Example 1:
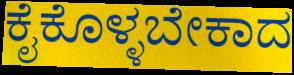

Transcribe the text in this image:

ಕೈಕೊಳ್ಳಬೇಕಾದ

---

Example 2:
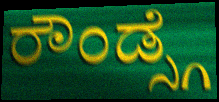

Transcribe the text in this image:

ರೌಂಡ್ಸ್ಗೆ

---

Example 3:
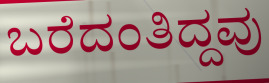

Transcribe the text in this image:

ಬರೆದಂತಿದ್ದವು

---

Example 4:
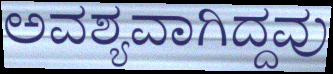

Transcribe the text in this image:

ಅವಶ್ಯವಾಗಿದ್ದವು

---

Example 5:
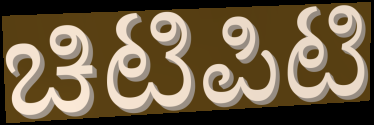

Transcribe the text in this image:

ಚಿಟಿಪಿಟಿ